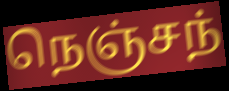
நெஞ்சந்